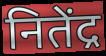
नितेंद्र